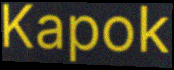
Kapok